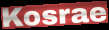
Kosrae